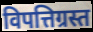
विपत्तिग्रस्त